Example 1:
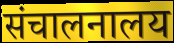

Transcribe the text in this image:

संचालनालय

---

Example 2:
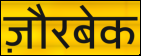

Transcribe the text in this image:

ज़ौरबेक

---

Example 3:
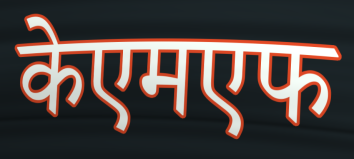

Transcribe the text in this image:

केएमएफ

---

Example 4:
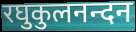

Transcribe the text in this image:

रघुकुलनन्दन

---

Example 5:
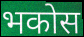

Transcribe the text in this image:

भकोस